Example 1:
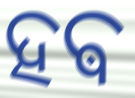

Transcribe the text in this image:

ହଵ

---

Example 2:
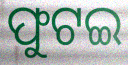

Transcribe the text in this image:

ଫୁଟଇ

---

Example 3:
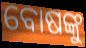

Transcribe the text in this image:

ବୋଷଙ୍କୁ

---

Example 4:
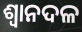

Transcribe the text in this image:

ଶ୍ୱାନଦଳ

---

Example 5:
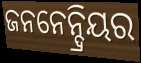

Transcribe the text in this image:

ଜନନେନ୍ଦ୍ରିୟର